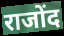
राजोंद